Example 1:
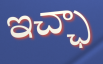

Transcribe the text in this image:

ఇచ్ఛా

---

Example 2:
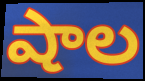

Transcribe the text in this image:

షాల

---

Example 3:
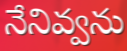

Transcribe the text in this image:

నేనివ్వను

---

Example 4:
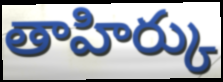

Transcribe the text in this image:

తాహిర్కు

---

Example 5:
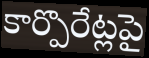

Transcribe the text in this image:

కార్పొరేట్లపై